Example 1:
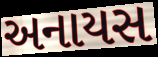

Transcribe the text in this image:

અનાયસ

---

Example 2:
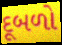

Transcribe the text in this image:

દૂબળો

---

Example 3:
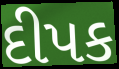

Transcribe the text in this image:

દીપક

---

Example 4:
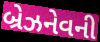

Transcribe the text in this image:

બ્રેઝનેવની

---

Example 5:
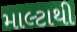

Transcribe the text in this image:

માલ્ટાથી